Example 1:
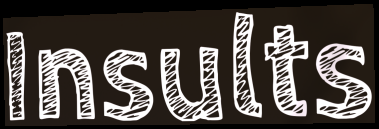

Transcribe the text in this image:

Insults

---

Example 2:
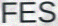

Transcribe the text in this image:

FES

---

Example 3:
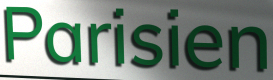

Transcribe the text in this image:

Parisien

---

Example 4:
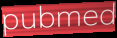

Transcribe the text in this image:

pubmed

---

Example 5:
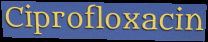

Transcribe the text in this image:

Ciprofloxacin